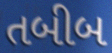
તબીબ